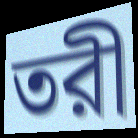
তরী